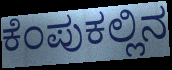
ಕೆಂಪುಕಲ್ಲಿನ